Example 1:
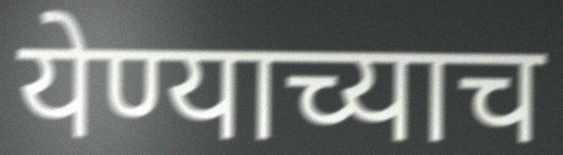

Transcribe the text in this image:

येण्याच्याच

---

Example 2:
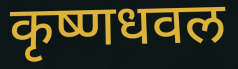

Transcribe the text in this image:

कृष्णधवल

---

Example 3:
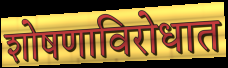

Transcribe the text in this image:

शोषणाविरोधात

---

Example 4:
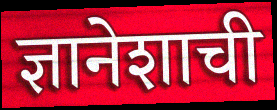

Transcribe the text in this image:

ज्ञानेशाची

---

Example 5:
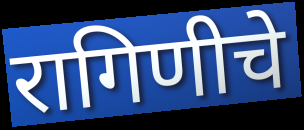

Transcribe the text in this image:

रागिणीचे